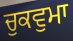
ਚੁਕਵੁਮਾ